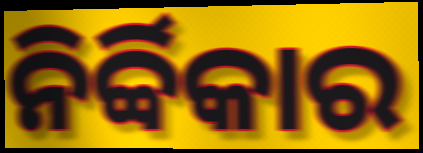
ନିର୍ବ୍ବିକାର